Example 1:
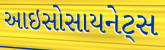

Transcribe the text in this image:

આઇસોસાયનેટ્સ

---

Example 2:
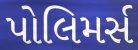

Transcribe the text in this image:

પોલિમર્સ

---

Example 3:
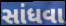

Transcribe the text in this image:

સાંધવા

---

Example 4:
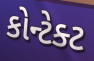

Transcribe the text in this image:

કોન્ટેક્ટ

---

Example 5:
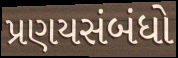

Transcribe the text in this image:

પ્રણયસંબંધો